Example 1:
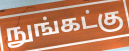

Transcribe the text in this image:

நுங்கட்கு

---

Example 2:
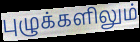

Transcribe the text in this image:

புழுக்களிலும்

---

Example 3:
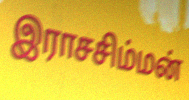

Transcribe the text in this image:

இராசசிம்மன்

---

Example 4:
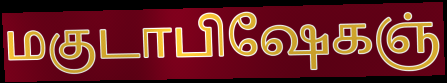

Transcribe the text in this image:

மகுடாபிஷேகஞ்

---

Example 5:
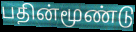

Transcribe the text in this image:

பதின்மூண்டு